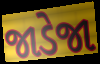
જાડેજા